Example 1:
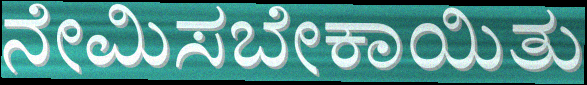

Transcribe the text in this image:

ನೇಮಿಸಬೇಕಾಯಿತು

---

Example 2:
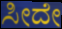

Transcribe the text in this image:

ಸೀದೇ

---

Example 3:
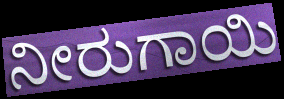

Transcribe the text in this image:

ನೀರುಗಾಯಿ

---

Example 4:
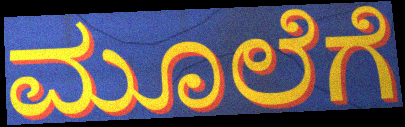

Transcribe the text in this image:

ಮೂಲೆಗೆ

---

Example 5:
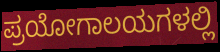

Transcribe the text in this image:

ಪ್ರಯೋಗಾಲಯಗಳಲ್ಲಿ